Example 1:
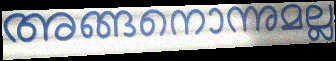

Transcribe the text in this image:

അങ്ങനൊന്നുമല്ല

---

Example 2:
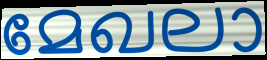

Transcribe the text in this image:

മേഖലാ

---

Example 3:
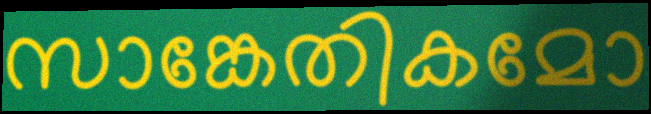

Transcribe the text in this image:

സാങ്കേതികമോ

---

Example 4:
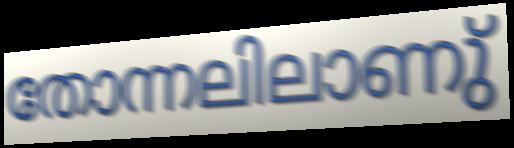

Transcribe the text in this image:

തോന്നലിലാണു്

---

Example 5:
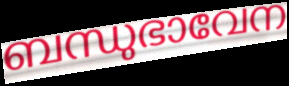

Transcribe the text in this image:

ബന്ധുഭാവേന